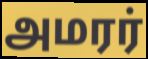
அமரர்